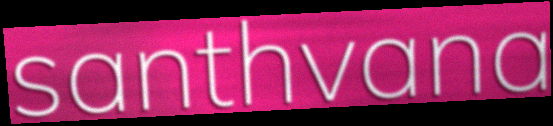
santhvana